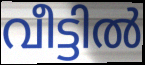
വീട്ടിൽ